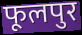
फूलपुर